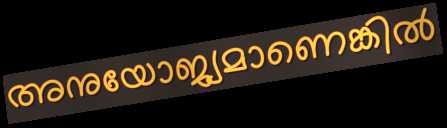
അനുയോജ്യമാണെങ്കിൽ